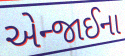
એન્જાઈના